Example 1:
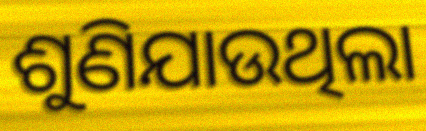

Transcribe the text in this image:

ଶୁଣିଯାଉଥିଲା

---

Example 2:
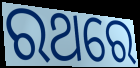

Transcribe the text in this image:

ରଥରେ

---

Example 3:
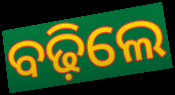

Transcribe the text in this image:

ବଢ଼ିଲେ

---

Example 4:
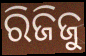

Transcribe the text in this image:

ରିଜିଜୁ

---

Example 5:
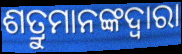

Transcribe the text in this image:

ଶତ୍ରୁମାନଙ୍କଦ୍ଵାରା